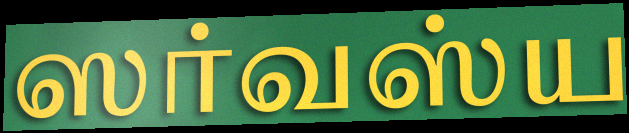
ஸர்வஸ்ய